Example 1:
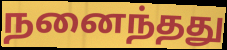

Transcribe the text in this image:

நனைந்தது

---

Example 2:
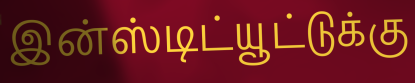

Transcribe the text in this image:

இன்ஸ்டிட்யூட்டுக்கு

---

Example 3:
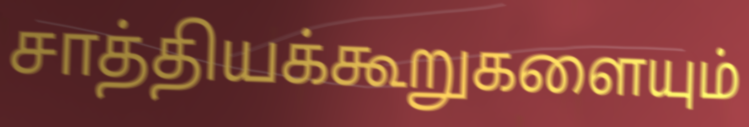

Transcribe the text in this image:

சாத்தியக்கூறுகளையும்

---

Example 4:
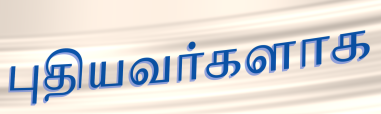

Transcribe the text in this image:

புதியவர்களாக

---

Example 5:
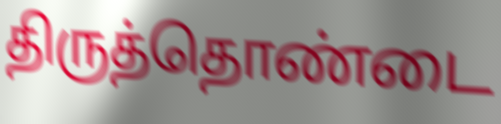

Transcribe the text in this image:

திருத்தொண்டை